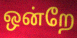
ஒன்றே